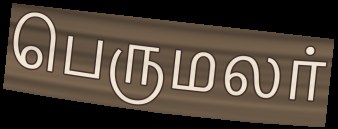
பெருமலர்